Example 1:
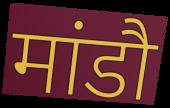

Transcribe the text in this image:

मांडौ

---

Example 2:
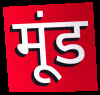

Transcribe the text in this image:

मूंड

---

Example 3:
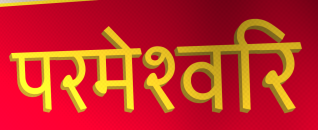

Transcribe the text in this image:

परमेश्वरि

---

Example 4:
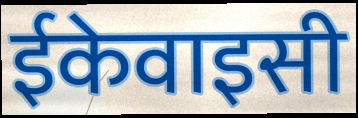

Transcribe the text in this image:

ईकेवाइसी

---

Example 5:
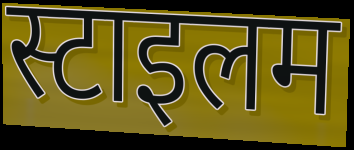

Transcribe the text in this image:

स्टाइलम